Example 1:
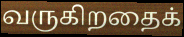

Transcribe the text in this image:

வருகிறதைக்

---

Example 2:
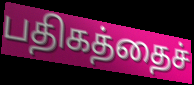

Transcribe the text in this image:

பதிகத்தைச்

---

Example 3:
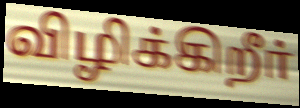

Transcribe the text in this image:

விழிக்கிறீர்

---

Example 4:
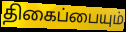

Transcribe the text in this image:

திகைப்பையும்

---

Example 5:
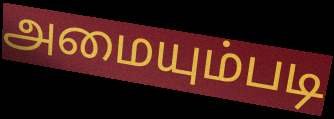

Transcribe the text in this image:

அமையும்படி